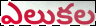
ఎలుకల